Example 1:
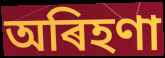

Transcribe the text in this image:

অৰিহণা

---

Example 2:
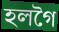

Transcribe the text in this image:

হলগৈ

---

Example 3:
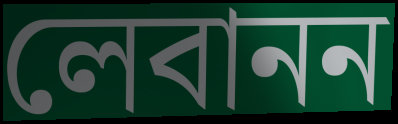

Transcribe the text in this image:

লেবানন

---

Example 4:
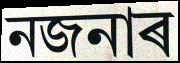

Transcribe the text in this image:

নজনাৰ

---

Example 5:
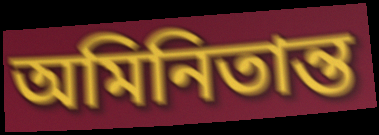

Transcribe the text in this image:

অমিনিতান্ত